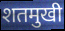
शतमुखी